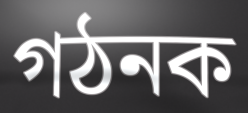
গঠনক